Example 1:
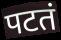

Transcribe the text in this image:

पटतं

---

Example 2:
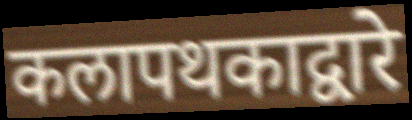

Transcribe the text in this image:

कलापथकाद्वारे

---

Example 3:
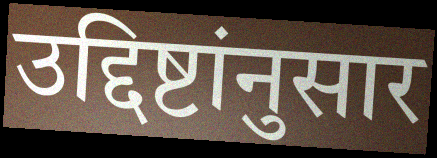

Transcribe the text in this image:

उद्दिष्टांनुसार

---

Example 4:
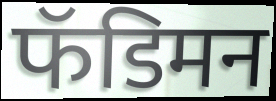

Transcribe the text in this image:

फॅडिमन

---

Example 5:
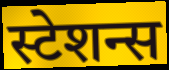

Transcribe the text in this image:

स्टेशन्स